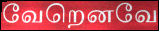
வேறெனவே